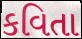
કવિતા